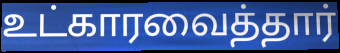
உட்காரவைத்தார்